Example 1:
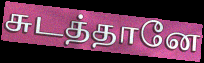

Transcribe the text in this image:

சுடத்தானே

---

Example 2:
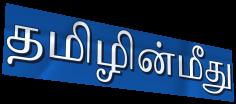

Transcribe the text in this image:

தமிழின்மீது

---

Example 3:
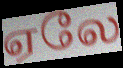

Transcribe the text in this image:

ஏலே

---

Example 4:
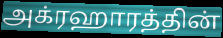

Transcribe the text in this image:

அக்ரஹாரத்தின்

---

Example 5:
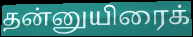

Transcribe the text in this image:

தன்னுயிரைக்